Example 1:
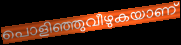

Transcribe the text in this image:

പൊളിഞ്ഞുവീഴുകയാണ്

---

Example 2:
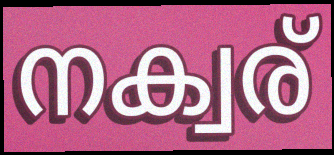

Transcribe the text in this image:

നക്വര്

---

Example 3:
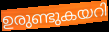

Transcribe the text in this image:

ഉരുണ്ടുകയറി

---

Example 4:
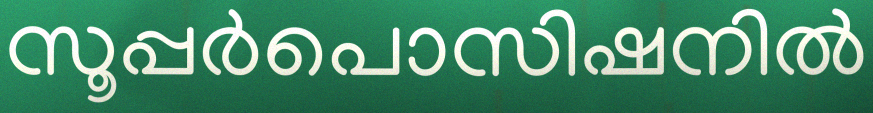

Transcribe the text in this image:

സൂപ്പർപൊസിഷനിൽ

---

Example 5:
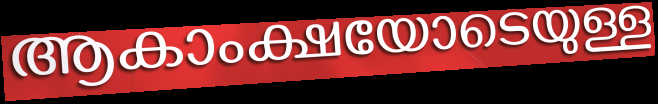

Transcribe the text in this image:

ആകാംക്ഷയോടെയുള്ള